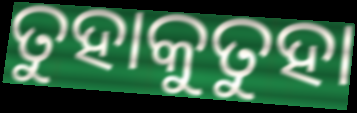
ତୁହାକୁତୁହା